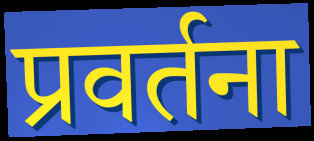
प्रवर्तना